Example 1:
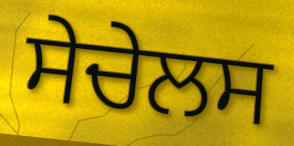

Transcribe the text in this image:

ਸੇਚੇਲਸ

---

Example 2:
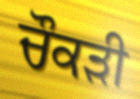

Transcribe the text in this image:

ਚੌਕੜੀ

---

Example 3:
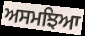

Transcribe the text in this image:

ਅਸਮਝਿਆ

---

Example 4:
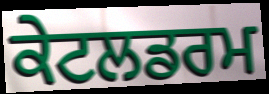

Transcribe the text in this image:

ਕੇਟਲਡਰਮ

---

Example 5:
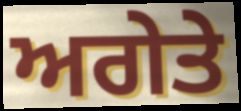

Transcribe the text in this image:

ਅਗੇਤੇ